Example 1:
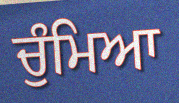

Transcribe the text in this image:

ਚੁੰਮਿਆ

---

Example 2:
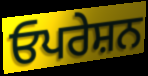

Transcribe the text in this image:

ਓਪਰੇਸ਼ਨ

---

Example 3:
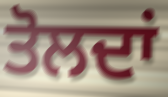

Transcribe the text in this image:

ਤੋਲਦਾਂ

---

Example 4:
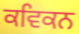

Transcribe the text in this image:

ਕਵਿਕਨ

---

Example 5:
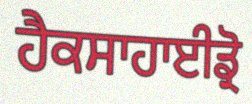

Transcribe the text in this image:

ਹੈਕਸਾਹਾਈਡ੍ਰੋ